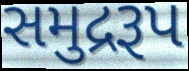
સમુદ્રરૂપ